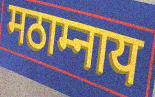
मठाम्नाय